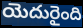
యెదురైంది